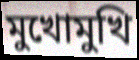
মুখোমুখি